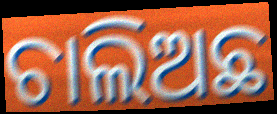
ଚାଲିଅଛ